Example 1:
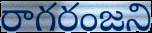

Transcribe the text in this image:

రాగరంజని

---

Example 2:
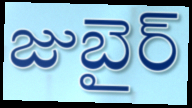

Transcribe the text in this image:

జుబైర్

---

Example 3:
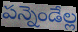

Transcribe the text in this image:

పన్నెండేల్ల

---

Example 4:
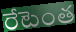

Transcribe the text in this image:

రేటెంత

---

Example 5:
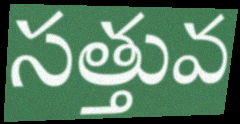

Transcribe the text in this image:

సత్తువ